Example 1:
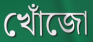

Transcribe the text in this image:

খোঁজো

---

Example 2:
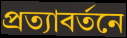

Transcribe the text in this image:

প্রত্যাবর্তনে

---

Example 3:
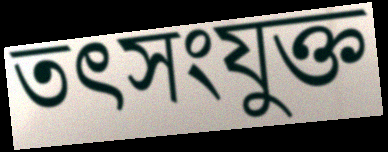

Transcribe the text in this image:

তৎসংযুক্ত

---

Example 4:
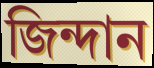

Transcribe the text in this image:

জিন্দান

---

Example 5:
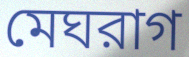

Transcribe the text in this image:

মেঘরাগ